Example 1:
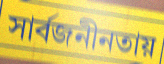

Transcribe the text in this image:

সার্বজনীনতায়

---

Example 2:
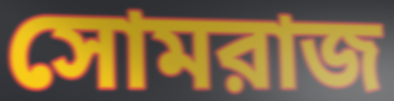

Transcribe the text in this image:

সোমরাজ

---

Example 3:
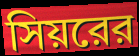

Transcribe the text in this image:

সিয়রের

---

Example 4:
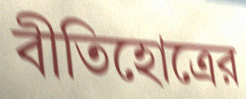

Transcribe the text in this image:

বীতিহোত্রের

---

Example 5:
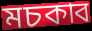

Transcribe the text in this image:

মচকাব